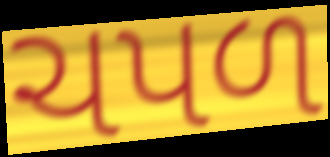
ચપળ